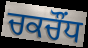
ਚਕਚੌਂਧ